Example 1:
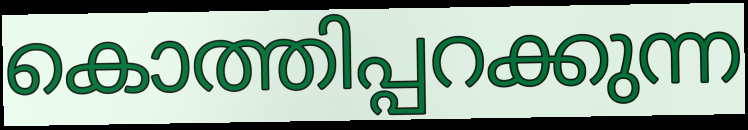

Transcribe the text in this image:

കൊത്തിപ്പറക്കുന്ന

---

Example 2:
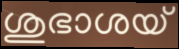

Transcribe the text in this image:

ശുഭാശയ്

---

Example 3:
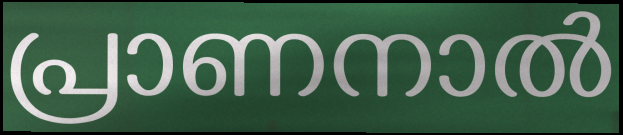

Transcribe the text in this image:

പ്രാണനാൽ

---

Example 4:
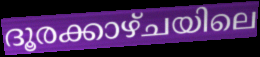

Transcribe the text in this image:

ദൂരക്കാഴ്ചയിലെ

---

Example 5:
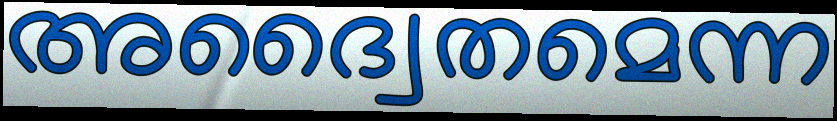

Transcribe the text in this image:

അദ്വൈതമെന്ന